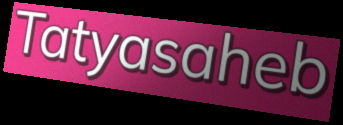
Tatyasaheb